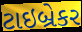
ટાઇબ્રેકર